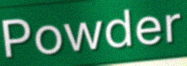
Powder